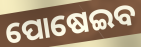
ପୋଷେଇବ